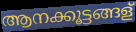
ആനക്കൂട്ടങ്ങള്